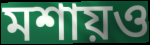
মশায়ও